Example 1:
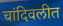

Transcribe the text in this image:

चांदिवलीत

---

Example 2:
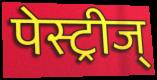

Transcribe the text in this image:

पेस्ट्रीज्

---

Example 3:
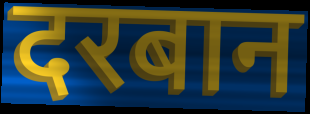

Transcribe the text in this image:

दरबान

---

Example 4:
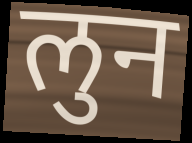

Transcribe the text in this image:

लुन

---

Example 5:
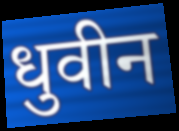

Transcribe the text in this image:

धुवीन